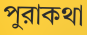
পুরাকথা